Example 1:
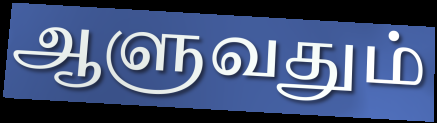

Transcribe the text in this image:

ஆளுவதும்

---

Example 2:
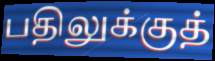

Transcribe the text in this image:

பதிலுக்குத்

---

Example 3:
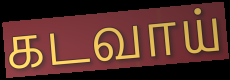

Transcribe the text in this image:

கடவாய்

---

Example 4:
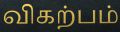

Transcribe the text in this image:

விகற்பம்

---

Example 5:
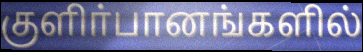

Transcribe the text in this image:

குளிர்பானங்களில்